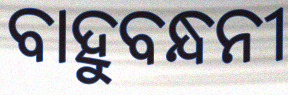
ବାହୁବନ୍ଧନୀ